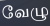
வேழு